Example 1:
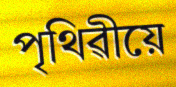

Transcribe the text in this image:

পৃথিৱীয়ে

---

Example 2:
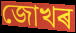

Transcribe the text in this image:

জোখৰ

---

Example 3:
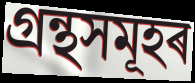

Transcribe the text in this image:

গ্ৰন্থসমূহৰ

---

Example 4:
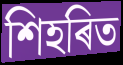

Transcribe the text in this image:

শিহৰিত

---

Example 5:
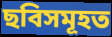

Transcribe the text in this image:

ছবিসমূহত